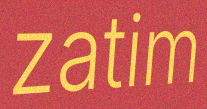
zatim